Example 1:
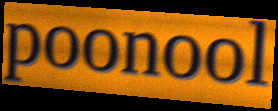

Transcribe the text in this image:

poonool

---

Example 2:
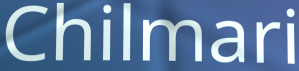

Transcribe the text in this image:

Chilmari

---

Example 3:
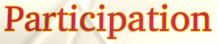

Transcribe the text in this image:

Participation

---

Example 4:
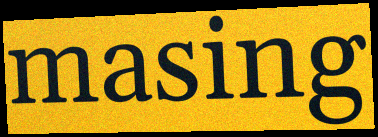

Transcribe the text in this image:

masing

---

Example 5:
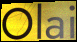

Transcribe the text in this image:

Olai